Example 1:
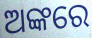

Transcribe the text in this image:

ଅଙ୍କରେ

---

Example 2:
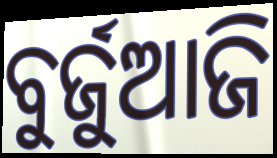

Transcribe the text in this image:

ବୁର୍ଜୁଆଜି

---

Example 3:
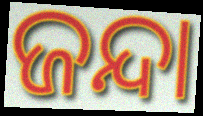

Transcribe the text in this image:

ଜନ୍ଦା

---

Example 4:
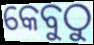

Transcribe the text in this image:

କେବୁଠୁ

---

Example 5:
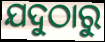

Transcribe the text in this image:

ଯଦୁଠାରୁ